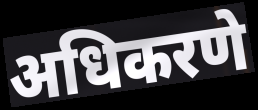
अधिकरणे